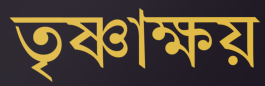
তৃষ্ণাক্ষয়